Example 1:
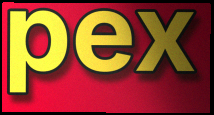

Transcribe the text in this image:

pex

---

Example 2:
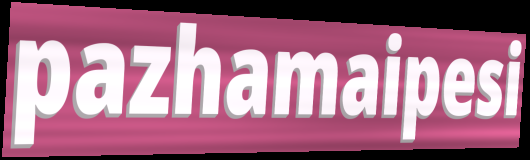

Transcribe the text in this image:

pazhamaipesi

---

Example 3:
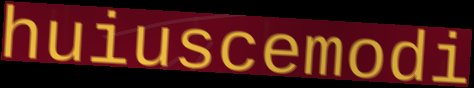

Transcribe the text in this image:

huiuscemodi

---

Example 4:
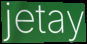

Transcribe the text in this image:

jetay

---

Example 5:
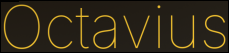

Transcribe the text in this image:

Octavius